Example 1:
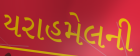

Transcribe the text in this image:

યરાહમેલની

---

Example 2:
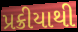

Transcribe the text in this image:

પ્રક્રીયાથી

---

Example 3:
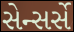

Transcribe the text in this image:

સેન્સર્સે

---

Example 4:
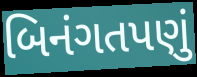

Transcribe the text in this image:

બિનંગતપણું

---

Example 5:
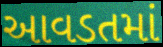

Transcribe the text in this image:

આવડતમાં